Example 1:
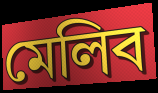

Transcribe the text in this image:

মেলিব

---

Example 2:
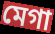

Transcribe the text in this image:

মেগা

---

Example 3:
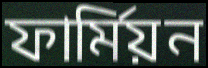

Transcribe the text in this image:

ফাৰ্মিয়ন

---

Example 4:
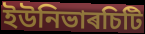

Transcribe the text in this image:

ইউনিভাৰচিটি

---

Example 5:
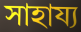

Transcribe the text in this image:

সাহায্য